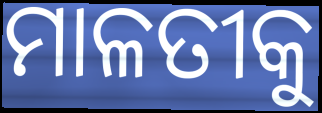
ମାଳତୀକୁ